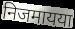
निजमायया